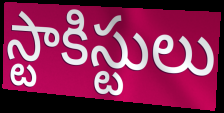
స్టాకిస్టులు